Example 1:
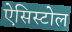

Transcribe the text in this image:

ऐसिस्टोल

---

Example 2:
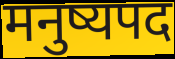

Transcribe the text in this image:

मनुष्यपद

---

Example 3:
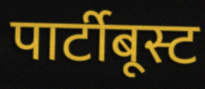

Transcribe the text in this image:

पार्टीबूस्ट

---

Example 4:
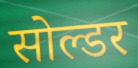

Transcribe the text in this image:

सोल्डर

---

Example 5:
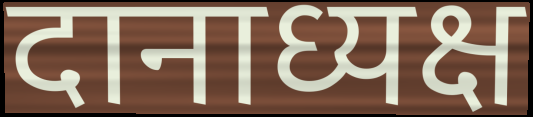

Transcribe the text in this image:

दानाध्यक्ष